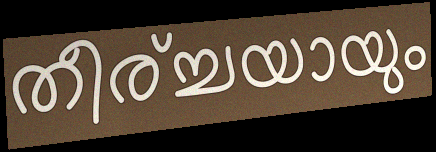
തീര്ച്ചയായും